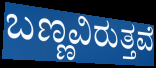
ಬಣ್ಣವಿರುತ್ತವೆ